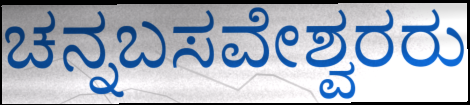
ಚನ್ನಬಸವೇಶ್ವರರು